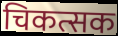
चिकत्सक